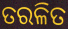
ତରଳିତ